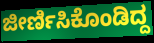
ಜೀರ್ಣಿಸಿಕೊಂಡಿದ್ದ